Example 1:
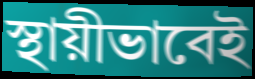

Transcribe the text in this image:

স্থায়ীভাবেই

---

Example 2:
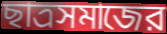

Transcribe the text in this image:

ছাত্রসমাজের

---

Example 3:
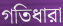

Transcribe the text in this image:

গতিধারা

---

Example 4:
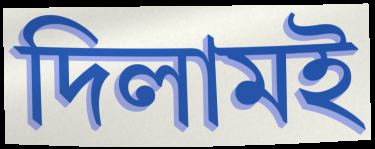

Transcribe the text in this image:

দিলামই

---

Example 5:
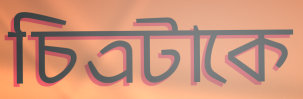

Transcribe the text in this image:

চিত্রটাকে